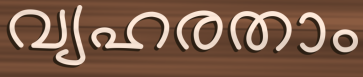
വ്യഹരതാം